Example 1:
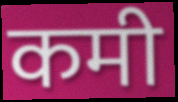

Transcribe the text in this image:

कमी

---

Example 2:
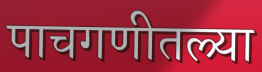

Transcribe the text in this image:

पाचगणीतल्या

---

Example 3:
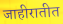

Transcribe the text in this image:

जाहीरातीत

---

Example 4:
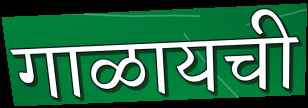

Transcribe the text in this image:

गाळायची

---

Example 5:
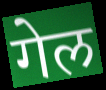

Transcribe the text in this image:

गेल